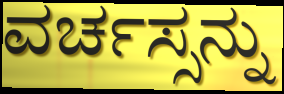
ವರ್ಚಸ್ಸನ್ನು